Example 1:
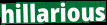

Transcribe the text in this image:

hillarious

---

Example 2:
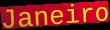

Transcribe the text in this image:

Janeiro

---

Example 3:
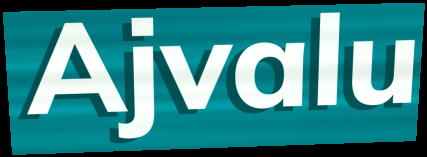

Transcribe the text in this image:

Ajvalu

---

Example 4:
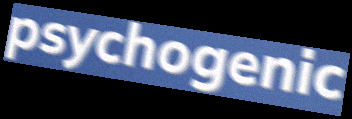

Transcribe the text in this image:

psychogenic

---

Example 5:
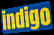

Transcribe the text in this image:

indigo